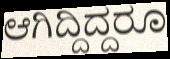
ಆಗಿದ್ದಿದ್ದರೂ